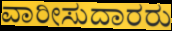
ವಾರೀಸುದಾರರು